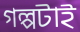
গল্পটাই